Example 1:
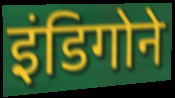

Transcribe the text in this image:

इंडिगोने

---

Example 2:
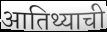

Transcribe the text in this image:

आतिथ्याची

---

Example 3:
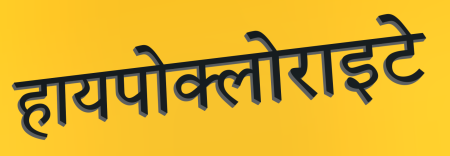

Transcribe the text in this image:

हायपोक्लोराइटे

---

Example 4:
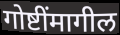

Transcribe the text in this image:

गोष्टींमागील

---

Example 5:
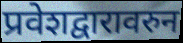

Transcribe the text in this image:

प्रवेशद्वारावरुन